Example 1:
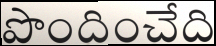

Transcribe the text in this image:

పొందించేది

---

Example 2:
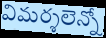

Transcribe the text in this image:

విమర్శలెన్నో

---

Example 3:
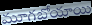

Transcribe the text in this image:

మూగబోయాయి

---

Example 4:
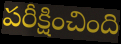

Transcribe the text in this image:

పరీక్షించింది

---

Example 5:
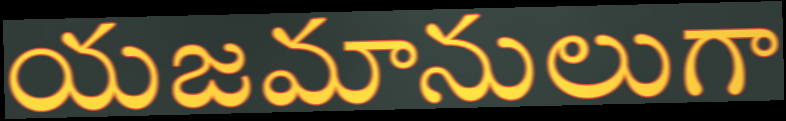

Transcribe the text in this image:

యజమానులుగా